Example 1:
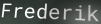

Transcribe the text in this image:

Frederik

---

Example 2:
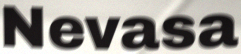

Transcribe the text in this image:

Nevasa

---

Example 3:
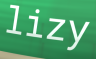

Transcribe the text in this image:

lizy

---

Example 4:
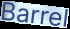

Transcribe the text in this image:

Barrel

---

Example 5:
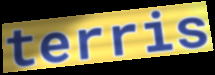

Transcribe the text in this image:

terris